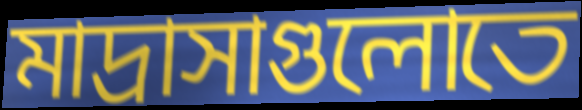
মাদ্রাসাগুলোতে